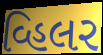
વ્હિલર